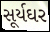
સૂર્યઘર